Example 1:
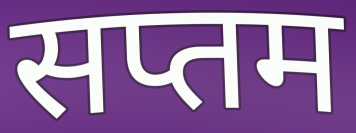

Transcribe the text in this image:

सप्तम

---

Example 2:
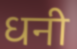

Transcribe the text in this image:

धनी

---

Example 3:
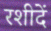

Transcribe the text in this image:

रशीदें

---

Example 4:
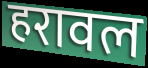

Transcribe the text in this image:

हरावल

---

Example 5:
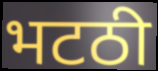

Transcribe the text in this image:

भटठी